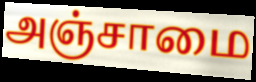
அஞ்சாமை